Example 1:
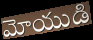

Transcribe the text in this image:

మోయుడి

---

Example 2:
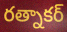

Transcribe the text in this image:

రత్నాకర్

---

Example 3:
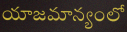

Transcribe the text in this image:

యాజమాన్యంలో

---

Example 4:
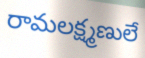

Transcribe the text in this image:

రామలక్ష్మణులే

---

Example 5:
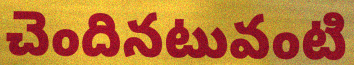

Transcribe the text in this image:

చెందినటువంటి